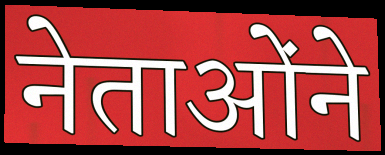
नेताओंने